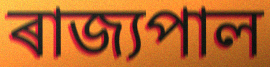
ৰাজ্যপাল